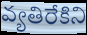
వ్యతిరేకిని